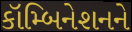
કૉમ્બિનેશનને